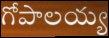
గోపాలయ్య